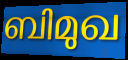
ബിമുഖ